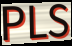
PLS